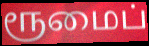
ரூமைப்